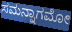
ಸಮನ್ನಾಗಮೋ